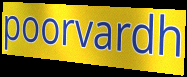
poorvardh